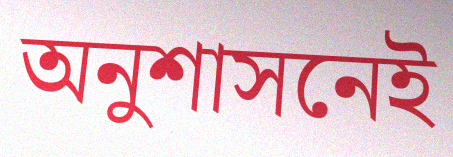
অনুশাসনেই